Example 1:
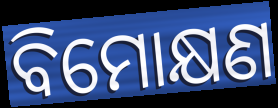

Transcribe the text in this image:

ବିମୋକ୍ଷଣ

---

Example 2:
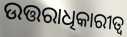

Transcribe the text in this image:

ଉତ୍ତରାଧିକାରୀତ୍ଵ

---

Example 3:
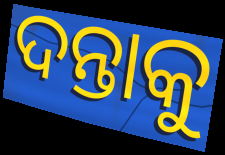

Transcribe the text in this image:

ଦନ୍ତାକୁ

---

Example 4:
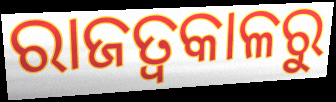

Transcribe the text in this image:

ରାଜତ୍ଵକାଳରୁ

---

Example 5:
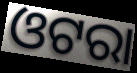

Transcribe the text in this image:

ଓଟରା